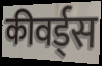
कीवर्ड्स